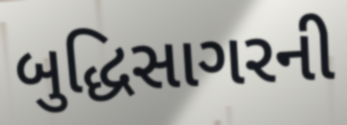
બુદ્ધિસાગરની